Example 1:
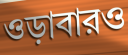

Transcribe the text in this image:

ওড়াবারও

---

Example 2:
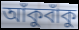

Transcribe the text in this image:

আঁকুবাঁকু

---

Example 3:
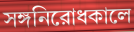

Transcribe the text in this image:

সঙ্গনিরোধকালে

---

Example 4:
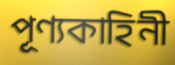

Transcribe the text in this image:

পূণ্যকাহিনী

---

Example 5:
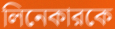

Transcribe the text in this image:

লিনেকারকে